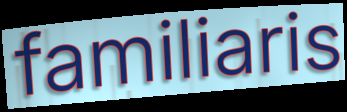
familiaris